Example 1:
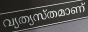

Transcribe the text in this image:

വ്യത്യസ്തമാണ്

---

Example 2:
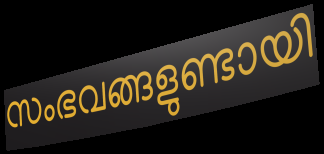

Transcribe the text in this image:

സംഭവങ്ങളുണ്ടായി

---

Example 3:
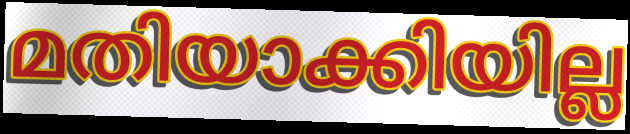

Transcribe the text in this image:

മതിയാക്കിയില്ല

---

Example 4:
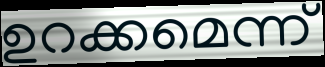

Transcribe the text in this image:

ഉറക്കമെന്ന്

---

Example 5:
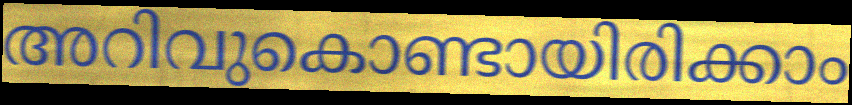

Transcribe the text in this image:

അറിവുകൊണ്ടായിരിക്കാം